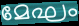
മേഘം